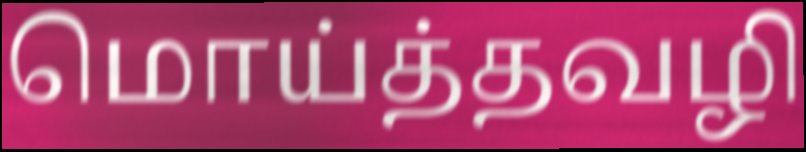
மொய்த்தவழி